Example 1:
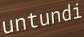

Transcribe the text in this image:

untundi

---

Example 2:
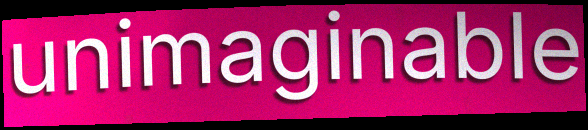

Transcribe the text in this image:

unimaginable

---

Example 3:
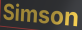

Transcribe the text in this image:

Simson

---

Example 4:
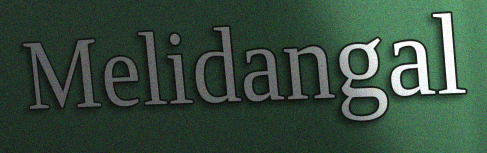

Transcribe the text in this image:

Melidangal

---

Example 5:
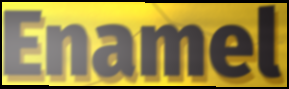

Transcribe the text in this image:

Enamel